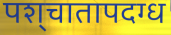
पश्चातापदग्ध